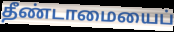
தீண்டாமையைப்